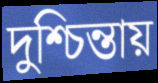
দুশ্চিন্তায়